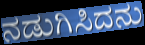
ನಡುಗಿಸಿದನು